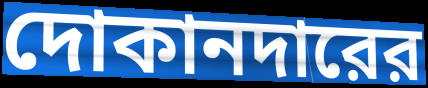
দোকানদারের